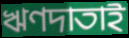
ঋণদাতাই